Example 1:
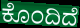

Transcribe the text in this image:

ಕೊಂದಿದೆ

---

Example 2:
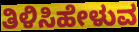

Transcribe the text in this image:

ತಿಳಿಸಿಹೇಳುವ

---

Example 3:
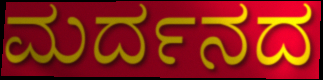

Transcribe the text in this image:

ಮರ್ದನದ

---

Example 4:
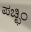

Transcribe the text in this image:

ಪಚ್ಛಿಂ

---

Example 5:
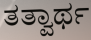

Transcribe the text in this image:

ತತ್ವಾರ್ಥ